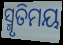
ସ୍ମୃତିମୟ